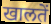
खालतें